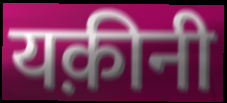
यक़ीनी